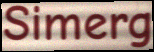
Simerg